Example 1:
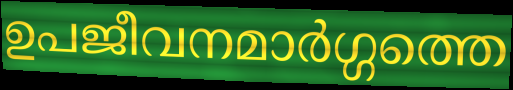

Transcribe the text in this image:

ഉപജീവനമാർഗ്ഗത്തെ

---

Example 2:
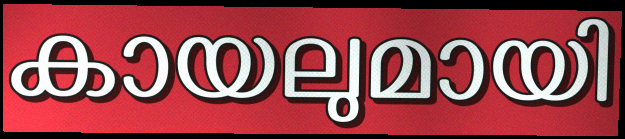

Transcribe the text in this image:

കായലുമായി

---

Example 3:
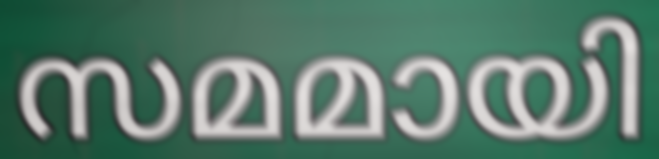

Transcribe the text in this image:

സമമായി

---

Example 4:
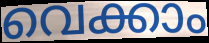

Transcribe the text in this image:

വെക്കാം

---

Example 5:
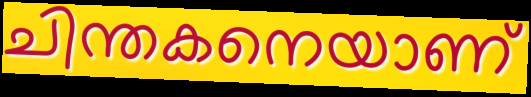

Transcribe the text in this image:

ചിന്തകനെയാണ്